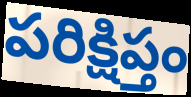
పరిక్షిప్తం